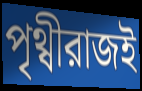
পৃথ্বীরাজই